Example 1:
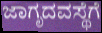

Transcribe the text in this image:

ಜಾಗೃದವಸ್ಥೆಗೆ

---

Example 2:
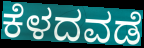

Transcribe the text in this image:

ಕೆಳದವಡೆ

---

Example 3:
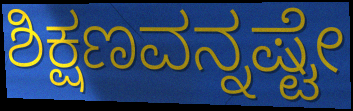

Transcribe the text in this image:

ಶಿಕ್ಷಣವನ್ನಷ್ಟೇ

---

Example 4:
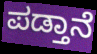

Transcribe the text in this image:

ಪಡ್ತಾನೆ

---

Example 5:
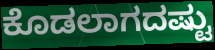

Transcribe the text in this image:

ಕೊಡಲಾಗದಷ್ಟು